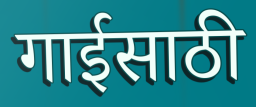
गाईसाठी